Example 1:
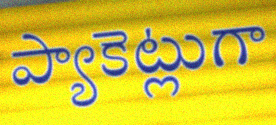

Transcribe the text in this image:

ప్యాకెట్లుగా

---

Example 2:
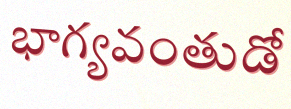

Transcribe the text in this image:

భాగ్యవంతుడో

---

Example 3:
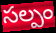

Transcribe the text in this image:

సల్పం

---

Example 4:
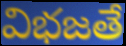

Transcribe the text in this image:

విభజతే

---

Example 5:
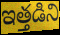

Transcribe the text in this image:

ఇత్తడిని